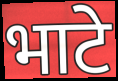
भाटे